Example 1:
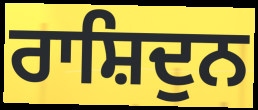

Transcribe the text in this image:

ਰਾਸ਼ਿਦੁਨ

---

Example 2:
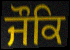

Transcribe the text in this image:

ਜੌਕਿ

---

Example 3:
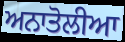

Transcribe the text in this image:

ਅਨਾਤੋਲੀਆ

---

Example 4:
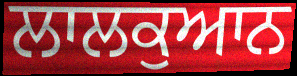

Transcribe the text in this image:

ਲਾਲਕੁਆਨ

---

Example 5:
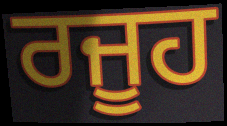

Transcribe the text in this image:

ਰਜੂਹ